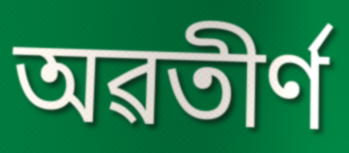
অৱতীৰ্ণ